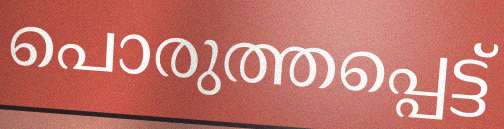
പൊരുത്തപ്പെട്ട്